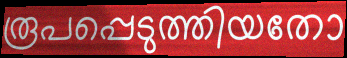
രൂപപ്പെടുത്തിയതോ